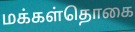
மக்கள்தொகை